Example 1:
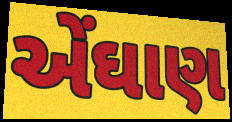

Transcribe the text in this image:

એંઘાણ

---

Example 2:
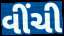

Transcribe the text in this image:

વીંચી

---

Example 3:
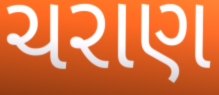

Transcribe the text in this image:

ચરાણ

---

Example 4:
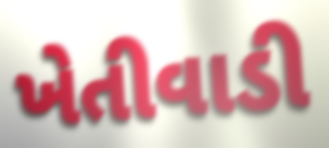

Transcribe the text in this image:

ખેતીવાડી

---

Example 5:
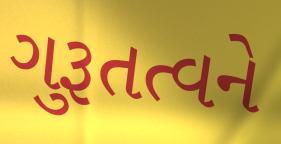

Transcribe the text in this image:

ગુરૂતત્વને